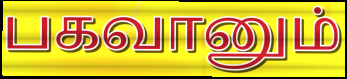
பகவானும்